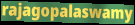
rajagopalaswamy